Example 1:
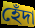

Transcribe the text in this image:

হেঁদা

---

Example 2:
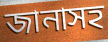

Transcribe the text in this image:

জানাসহ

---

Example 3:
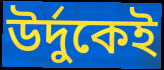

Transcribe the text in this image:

উর্দুকেই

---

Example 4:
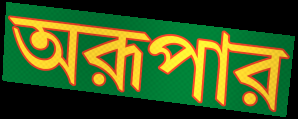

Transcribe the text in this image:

অরূপার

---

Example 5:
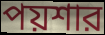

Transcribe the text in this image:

পয়শার